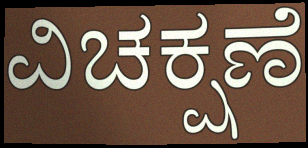
ವಿಚಕ್ಷಣೆ